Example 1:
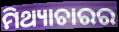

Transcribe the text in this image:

ମିଥ୍ୟାଚାରର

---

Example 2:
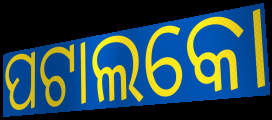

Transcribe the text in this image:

ପଟାଲକୋ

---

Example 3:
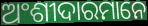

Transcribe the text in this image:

ଅଂଶୀଦାରମାନେ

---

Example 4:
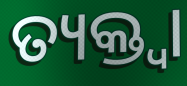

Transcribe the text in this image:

ତ୍ୟକ୍ତ୍ୱା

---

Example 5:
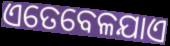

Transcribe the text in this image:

ଏତେବେଳଯାଏ